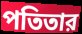
পতিতার